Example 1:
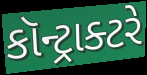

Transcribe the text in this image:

કૉન્ટ્રાક્ટરે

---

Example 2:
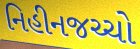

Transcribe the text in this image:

નિહીનજચ્ચો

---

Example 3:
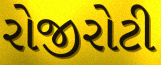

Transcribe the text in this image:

રોજીરોટી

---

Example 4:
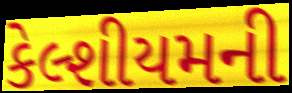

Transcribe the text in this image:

કેલ્શીયમની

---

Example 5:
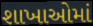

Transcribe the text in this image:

શાખાઓમાં